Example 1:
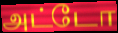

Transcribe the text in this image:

அட்டோ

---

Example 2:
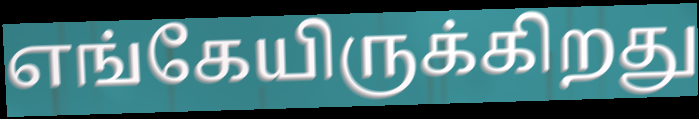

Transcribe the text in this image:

எங்கேயிருக்கிறது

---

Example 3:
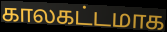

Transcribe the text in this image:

காலகட்டமாக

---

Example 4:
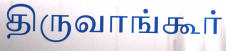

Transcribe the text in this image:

திருவாங்கூர்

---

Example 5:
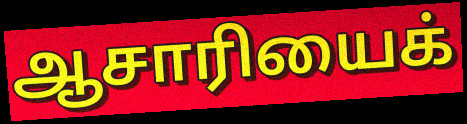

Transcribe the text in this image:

ஆசாரியைக்